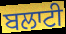
ਬਲਾਟੀ